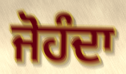
ਜੋਹੰਦਾ